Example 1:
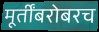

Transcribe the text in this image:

मूर्तींबरोबरच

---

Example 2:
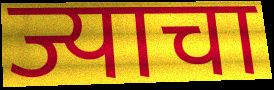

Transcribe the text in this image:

ज्याचा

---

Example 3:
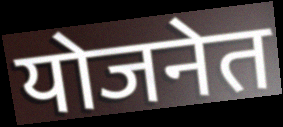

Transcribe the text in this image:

योजनेत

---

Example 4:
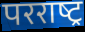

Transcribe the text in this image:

परराष्ट्र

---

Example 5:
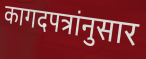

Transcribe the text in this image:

कागदपत्रांनुसार